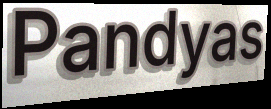
Pandyas